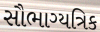
સૌભાગ્યત્રિક